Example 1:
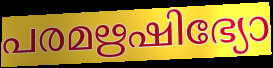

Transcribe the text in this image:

പരമഋഷിഭ്യോ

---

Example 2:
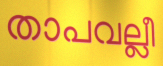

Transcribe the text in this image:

താപവല്ലീ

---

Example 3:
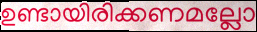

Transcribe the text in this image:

ഉണ്ടായിരിക്കണമല്ലോ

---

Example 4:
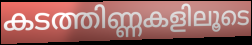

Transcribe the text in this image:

കടത്തിണ്ണകളിലൂടെ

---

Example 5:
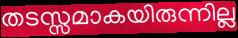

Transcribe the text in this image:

തടസ്സമാകയിരുന്നില്ല